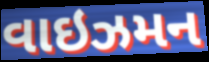
વાઇઝમન